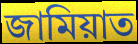
জামিয়াত